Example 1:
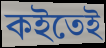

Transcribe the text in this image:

কইতেই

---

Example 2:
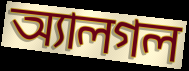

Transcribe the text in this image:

অ্যালগল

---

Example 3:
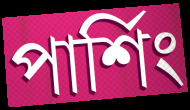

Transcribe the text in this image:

পার্শিং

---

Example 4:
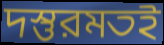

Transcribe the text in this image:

দস্তুরমতই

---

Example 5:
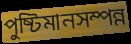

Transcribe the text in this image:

পুষ্টিমানসম্পন্ন